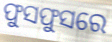
ଫୁସଫୁସରେ